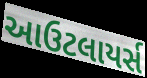
આઉટલાયર્સ